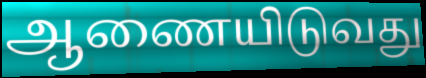
ஆணையிடுவது